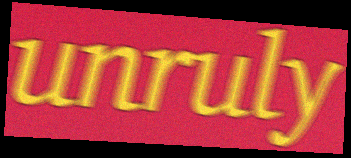
unruly